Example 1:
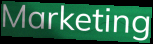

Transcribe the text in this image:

Marketing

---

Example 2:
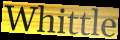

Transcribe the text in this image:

Whittle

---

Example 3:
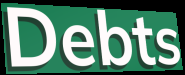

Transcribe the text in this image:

Debts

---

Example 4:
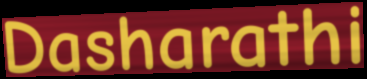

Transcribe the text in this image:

Dasharathi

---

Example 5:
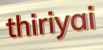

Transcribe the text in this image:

thiriyai